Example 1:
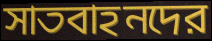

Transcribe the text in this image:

সাতবাহনদের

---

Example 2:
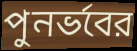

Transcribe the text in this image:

পুনর্ভবের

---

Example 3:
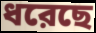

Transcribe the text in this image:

ধরেছে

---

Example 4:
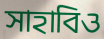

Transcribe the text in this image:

সাহাবিও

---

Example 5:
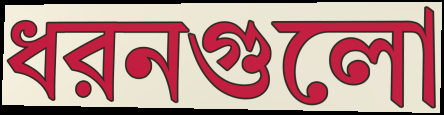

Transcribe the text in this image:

ধরনগুলো